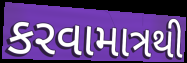
કરવામાત્રથી